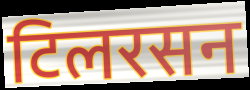
टिलरसन